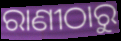
ରାଣୀଠାରୁ